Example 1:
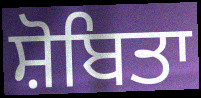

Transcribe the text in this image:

ਸ਼ੋਬਿਤਾ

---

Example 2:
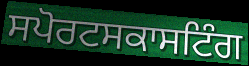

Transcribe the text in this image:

ਸਪੋਰਟਸਕਾਸਟਿੰਗ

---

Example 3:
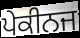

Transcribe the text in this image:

ਪੇਕੀਨਜ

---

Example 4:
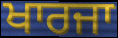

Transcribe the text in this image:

ਖਾਰਜਾ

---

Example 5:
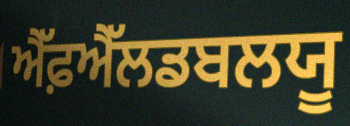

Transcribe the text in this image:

ਐੱਫ਼ਐੱਲਡਬਲਯੂ